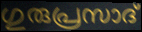
ഗുരുപ്രസാദ്